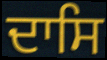
ਦਾਸਿ